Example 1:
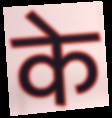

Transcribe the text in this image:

के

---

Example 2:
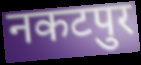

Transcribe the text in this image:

नकटपुर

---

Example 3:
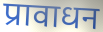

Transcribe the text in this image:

प्रावाधन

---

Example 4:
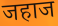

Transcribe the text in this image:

जहाज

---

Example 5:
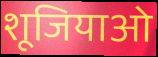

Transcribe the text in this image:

शूजियाओ